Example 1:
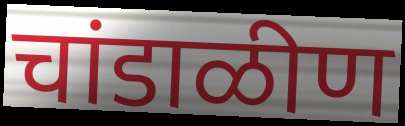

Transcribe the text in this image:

चांडाळीण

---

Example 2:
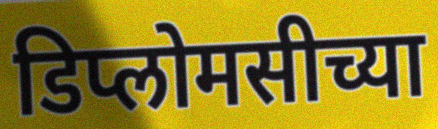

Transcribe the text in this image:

डिप्लोमसीच्या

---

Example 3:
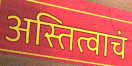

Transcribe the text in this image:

अस्तित्वाचं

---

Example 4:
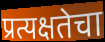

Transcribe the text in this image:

प्रत्यक्षतेचा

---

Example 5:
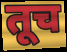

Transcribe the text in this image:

तूच